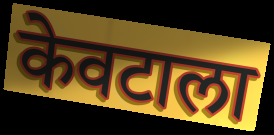
केवटाला